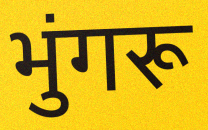
भुंगरू